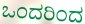
ಒಂದರಿಂದ